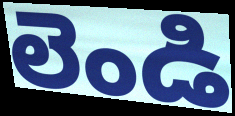
లెండి